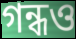
গন্ধও